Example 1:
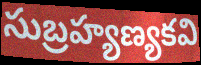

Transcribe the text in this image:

సుబ్రహ్యణ్యకవి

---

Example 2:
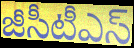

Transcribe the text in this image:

జీసీటీఎస్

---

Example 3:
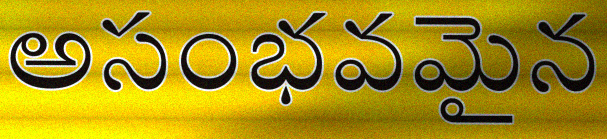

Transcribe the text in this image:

అసంభవమైన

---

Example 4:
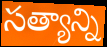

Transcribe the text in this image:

సత్యాన్ని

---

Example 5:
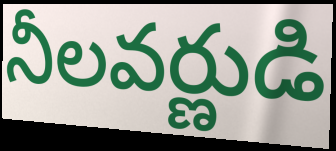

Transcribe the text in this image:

నీలవర్ణుడి